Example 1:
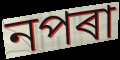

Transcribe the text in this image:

নপৰা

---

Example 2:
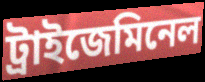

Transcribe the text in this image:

ট্ৰাইজেমিনেল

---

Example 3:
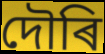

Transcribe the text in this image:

দৌৰি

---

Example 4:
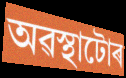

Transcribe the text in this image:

অৱস্থাটোৰ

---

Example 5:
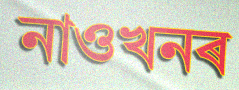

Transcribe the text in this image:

নাওখনৰ